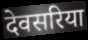
देवसरिया